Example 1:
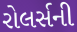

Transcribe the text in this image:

રોલર્સની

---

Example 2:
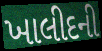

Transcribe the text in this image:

ખાલીદની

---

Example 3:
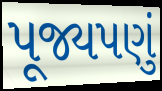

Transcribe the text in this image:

પૂજ્યપણું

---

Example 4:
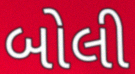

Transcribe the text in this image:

બોલી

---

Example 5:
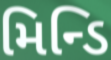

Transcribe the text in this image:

મિન્ડિ